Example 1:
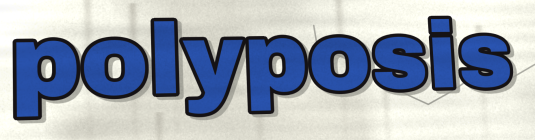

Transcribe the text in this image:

polyposis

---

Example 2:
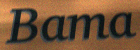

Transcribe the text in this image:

Bama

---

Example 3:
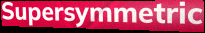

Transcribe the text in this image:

Supersymmetric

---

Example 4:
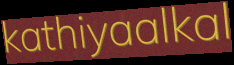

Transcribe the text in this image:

kathiyaalkal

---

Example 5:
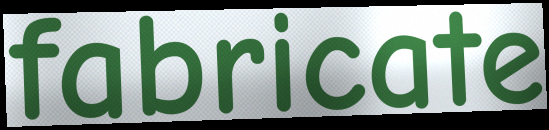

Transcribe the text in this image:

fabricate